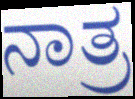
ನಾತ್ರ